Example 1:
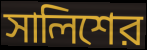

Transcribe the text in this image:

সালিশের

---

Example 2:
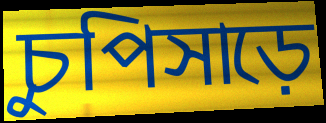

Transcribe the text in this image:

চুপিসাড়ে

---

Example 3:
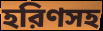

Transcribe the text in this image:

হরিণসহ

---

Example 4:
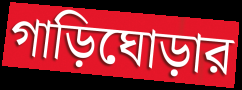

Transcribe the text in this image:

গাড়িঘোড়ার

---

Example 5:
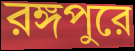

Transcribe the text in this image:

রঙ্গপুরে